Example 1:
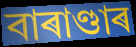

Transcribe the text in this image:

বাৰাণ্ডাৰ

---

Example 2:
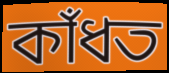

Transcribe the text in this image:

কাঁধত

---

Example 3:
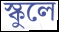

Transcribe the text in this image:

স্কুলে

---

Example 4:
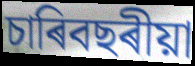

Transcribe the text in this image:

চাৰিবছৰীয়া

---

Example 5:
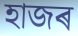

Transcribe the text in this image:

হাজৰ